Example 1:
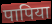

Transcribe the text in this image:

पापिया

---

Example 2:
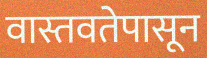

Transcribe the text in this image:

वास्तवतेपासून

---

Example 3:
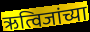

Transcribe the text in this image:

ऋत्विजांच्या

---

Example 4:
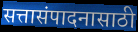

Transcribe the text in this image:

सत्तासंपादनासाठी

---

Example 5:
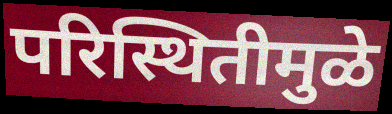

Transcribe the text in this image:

परिस्थितीमुळे